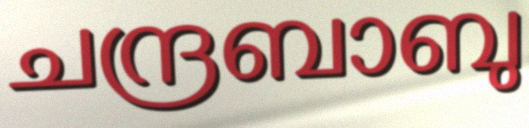
ചന്ദ്രബാബു